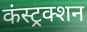
कंस्ट्रक्शन